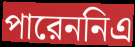
পারেননিএ